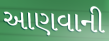
આણવાની